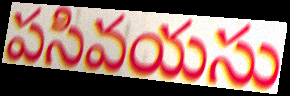
పసివయసు